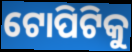
ଟୋପିଟିକୁ